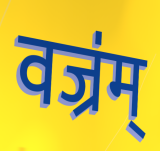
वज्र॑म्